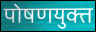
पोषणयुक्त